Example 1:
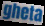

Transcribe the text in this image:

gheta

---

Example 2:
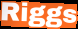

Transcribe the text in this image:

Riggs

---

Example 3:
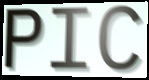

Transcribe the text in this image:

PIC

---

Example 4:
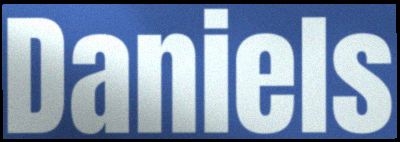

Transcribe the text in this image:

Daniels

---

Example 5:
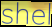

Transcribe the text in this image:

shel